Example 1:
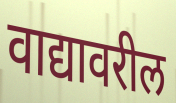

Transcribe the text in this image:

वाद्यावरील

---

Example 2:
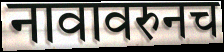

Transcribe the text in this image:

नावावरुनच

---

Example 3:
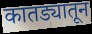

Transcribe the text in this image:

कातड्यातून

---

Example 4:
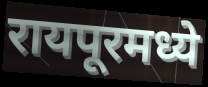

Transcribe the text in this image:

रायपूरमध्ये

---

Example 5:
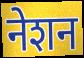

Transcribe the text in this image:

नेशन